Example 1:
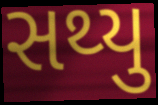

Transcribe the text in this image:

સથ્યુ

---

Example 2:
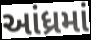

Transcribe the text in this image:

આંધ્રમાં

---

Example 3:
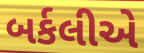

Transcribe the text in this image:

બર્કલીએ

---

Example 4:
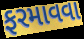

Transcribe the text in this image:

ફરમાવવા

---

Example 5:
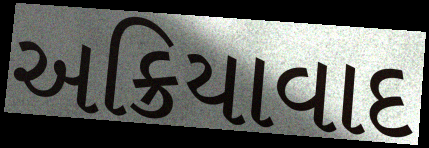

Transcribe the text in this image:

અક્રિયાવાદ